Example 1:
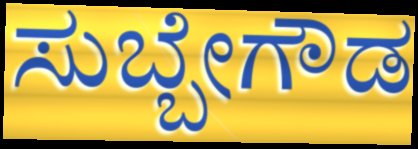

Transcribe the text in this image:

ಸುಬ್ಬೇಗೌಡ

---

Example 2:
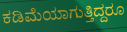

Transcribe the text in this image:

ಕಡಿಮೆಯಾಗುತ್ತಿದ್ದರೂ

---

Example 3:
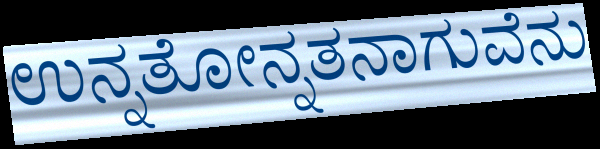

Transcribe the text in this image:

ಉನ್ನತೋನ್ನತನಾಗುವೆನು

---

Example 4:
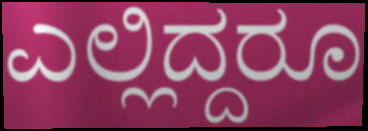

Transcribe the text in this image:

ಎಲ್ಲಿದ್ದರೂ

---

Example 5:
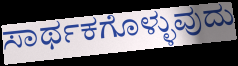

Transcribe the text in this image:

ಸಾರ್ಥಕಗೊಳ್ಳುವುದು